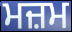
ਮਜ਼ਮ